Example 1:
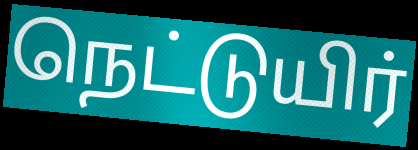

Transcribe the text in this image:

நெட்டுயிர்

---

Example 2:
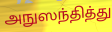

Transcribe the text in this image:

அநுஸந்தித்து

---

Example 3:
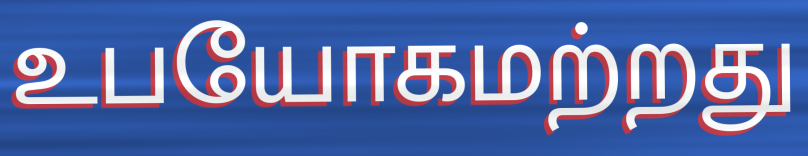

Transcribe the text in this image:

உபயோகமற்றது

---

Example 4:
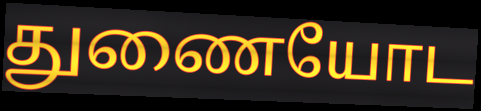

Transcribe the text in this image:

துணையோட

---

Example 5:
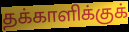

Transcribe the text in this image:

தக்காளிக்குக்